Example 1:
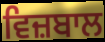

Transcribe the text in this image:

ਵਿਜ਼ਬਾਲ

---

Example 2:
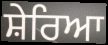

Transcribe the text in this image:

ਸ਼ੇਰਿਆ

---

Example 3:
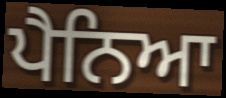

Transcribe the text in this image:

ਪੈਨਿਆ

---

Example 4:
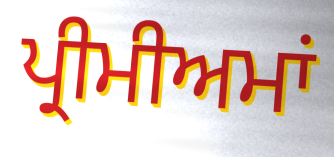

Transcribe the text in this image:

ਪ੍ਰੀਮੀਅਮਾਂ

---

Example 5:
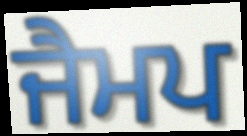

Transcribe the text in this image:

ਜੈਮਪ